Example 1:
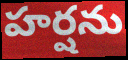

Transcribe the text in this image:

హర్షను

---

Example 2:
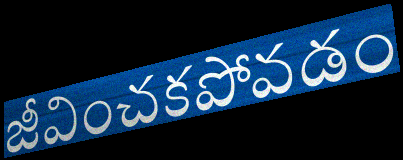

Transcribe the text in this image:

జీవించకపోవడం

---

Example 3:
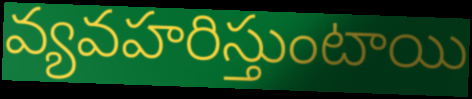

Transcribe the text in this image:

వ్యవహరిస్తుంటాయి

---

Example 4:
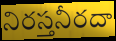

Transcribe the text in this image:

నిరస్తనీరదా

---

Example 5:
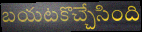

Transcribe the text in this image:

బయటకొచ్చేసింది